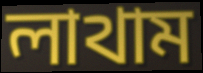
লাথাম